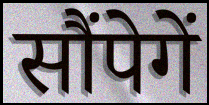
सौंपेगें